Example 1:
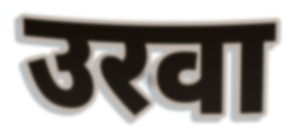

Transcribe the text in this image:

उरवा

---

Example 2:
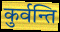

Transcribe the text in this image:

कुर्वन्ति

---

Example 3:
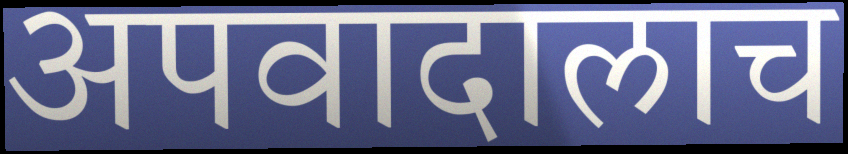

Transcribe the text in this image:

अपवादालाच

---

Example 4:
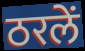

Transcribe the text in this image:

ठरलें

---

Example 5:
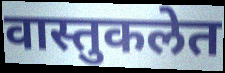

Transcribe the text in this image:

वास्तुकलेत